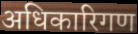
अधिकारिगण